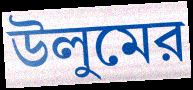
উলুমের